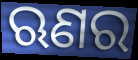
ଋଣର